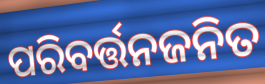
ପରିବର୍ତ୍ତନଜନିତ